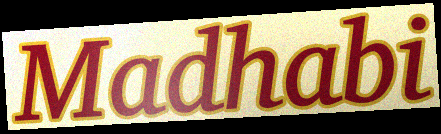
Madhabi